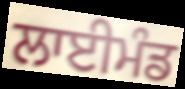
ਲਾਈਮੰਡ